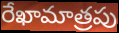
రేఖామాత్రపు